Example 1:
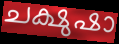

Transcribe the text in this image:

ചക്ഷുഷാ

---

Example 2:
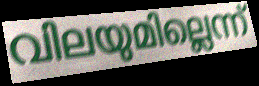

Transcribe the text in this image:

വിലയുമില്ലെന്ന്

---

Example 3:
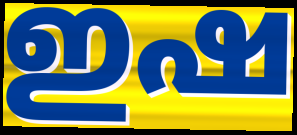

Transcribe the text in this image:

ഇഷ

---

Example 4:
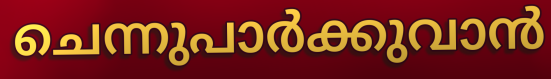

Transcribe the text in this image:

ചെന്നുപാർക്കുവാൻ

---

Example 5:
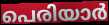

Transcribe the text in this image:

പെരിയാർ